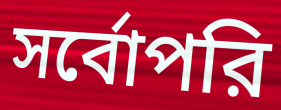
সর্বোপরি